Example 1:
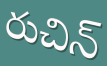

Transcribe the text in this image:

రుచిన్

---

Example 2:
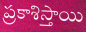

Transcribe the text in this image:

ప్రకాశిస్తాయి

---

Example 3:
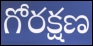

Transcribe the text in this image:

గోరక్షణ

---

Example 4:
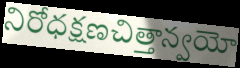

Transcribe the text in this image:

నిరోధక్షణచిత్తాన్వయో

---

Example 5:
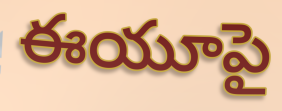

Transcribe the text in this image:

ఈయూపై